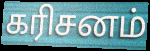
கரிசனம்